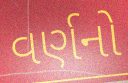
વર્ણનો